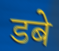
डबे